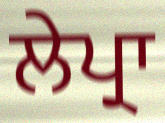
ਲੇਪ੍ਰਾ